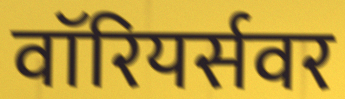
वॉरियर्सवर